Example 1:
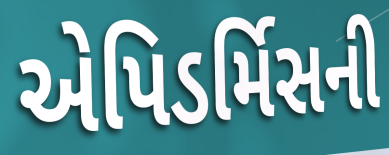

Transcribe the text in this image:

એપિડર્મિસની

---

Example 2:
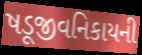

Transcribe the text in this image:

ષડૂજીવનિકાયની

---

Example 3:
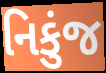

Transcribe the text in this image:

નિકુંજ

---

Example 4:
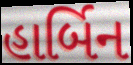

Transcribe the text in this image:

હાર્બિન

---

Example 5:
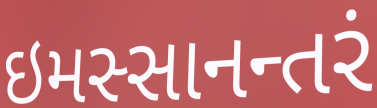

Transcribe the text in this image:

ઇમસ્સાનન્તરં